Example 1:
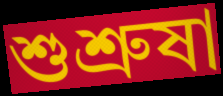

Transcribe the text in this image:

শুশ্রুষা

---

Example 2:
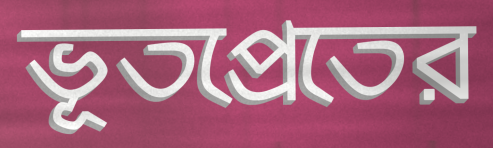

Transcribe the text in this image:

ভূতপ্রেতের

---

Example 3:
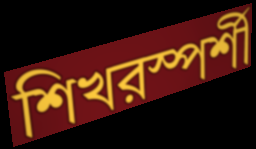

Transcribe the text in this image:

শিখরস্পর্শী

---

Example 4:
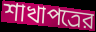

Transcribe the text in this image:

শাখাপত্রের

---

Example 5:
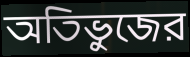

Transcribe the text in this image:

অতিভুজের